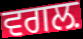
ਵਗਲ਼